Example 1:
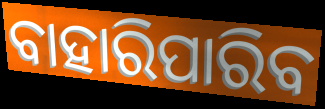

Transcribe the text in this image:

ବାହାରିପାରିବ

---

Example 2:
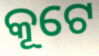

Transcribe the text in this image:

କୂଟେ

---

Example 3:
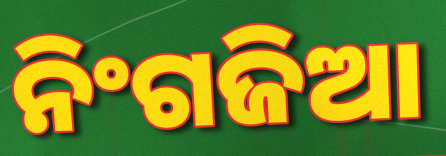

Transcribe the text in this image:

ନିଂଗଜିଆ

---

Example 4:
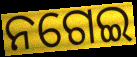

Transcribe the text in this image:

ନଗେଇ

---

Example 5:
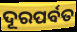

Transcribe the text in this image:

ଦୂରପର୍ବତ